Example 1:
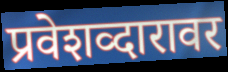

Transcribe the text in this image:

प्रवेशव्दारावर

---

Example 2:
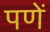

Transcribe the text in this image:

पणें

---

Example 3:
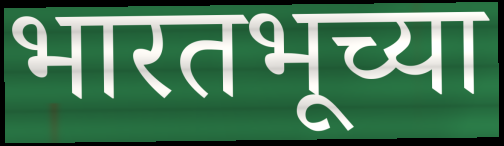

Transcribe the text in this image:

भारतभूच्या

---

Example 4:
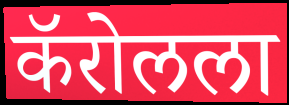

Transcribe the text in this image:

कॅरोलला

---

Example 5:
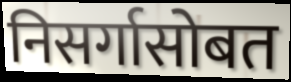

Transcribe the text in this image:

निसर्गासोबत